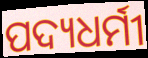
ପଦ୍ୟଧର୍ମୀ